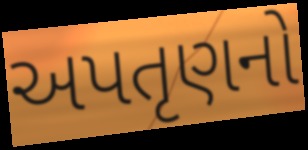
અપતૃણનો